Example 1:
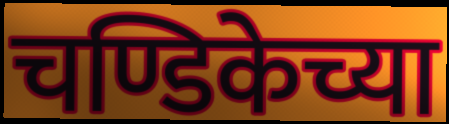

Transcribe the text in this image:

चण्डिकेच्या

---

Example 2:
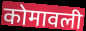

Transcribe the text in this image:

कोमावली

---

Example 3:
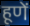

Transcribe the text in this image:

हूणें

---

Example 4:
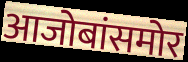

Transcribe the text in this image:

आजोबांसमोर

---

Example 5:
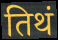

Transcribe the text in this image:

तिथं